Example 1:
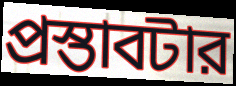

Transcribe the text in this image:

প্রস্তাবটার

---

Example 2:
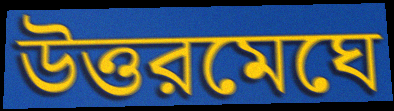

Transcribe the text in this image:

উত্তরমেঘে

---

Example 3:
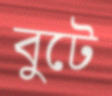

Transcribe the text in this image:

বুটে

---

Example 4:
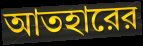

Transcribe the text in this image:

আতহারের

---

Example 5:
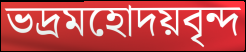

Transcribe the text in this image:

ভদ্রমহোদয়বৃন্দ